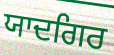
ਯਾਦਗਿਰ